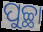
ପୁଚ୍ଛା